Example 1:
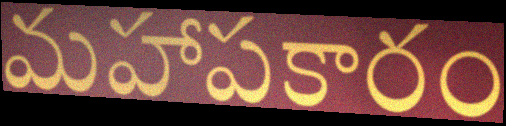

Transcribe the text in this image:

మహాపకారం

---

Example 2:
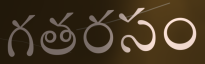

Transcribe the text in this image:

గతరసం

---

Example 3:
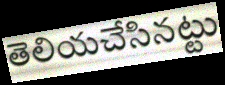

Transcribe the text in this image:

తెలియచేసినట్టు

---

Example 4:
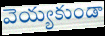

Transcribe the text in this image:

వెయ్యకుండా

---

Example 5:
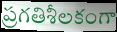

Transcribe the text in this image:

ప్రగతిశీలకంగా